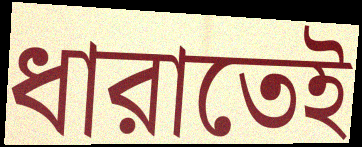
ধারাতেই